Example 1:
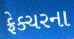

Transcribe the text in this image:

ફ્રેક્ચરના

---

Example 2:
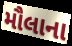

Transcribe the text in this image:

મૌલાના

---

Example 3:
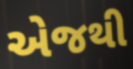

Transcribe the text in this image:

એજથી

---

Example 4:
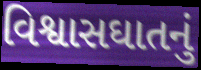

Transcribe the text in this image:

વિશ્વાસઘાતનું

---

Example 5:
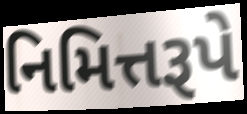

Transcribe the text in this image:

નિમિત્તરૂપે